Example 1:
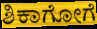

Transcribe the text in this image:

ಶಿಕಾಗೋಗೆ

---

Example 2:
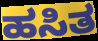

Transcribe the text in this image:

ಹಸಿತ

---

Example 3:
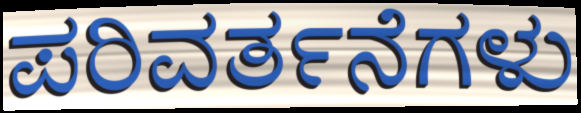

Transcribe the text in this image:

ಪರಿವರ್ತನೆಗಳು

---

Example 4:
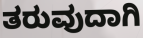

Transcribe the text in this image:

ತರುವುದಾಗಿ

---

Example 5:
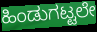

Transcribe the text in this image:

ಹಿಂಡುಗಟ್ಟಲೇ